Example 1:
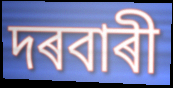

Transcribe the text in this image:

দৰবাৰী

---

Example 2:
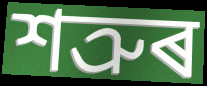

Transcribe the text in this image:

শত্ৰুৰ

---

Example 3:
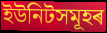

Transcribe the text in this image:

ইউনিটসমূহৰ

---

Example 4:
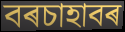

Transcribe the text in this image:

বৰচাহাবৰ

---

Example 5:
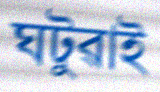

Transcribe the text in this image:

ঘটুৱাই